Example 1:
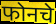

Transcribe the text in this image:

फोनचे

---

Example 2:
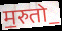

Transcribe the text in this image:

म॒रुतो॒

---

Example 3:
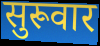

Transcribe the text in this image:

सुरूवार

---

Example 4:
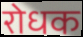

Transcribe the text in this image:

रोधक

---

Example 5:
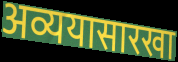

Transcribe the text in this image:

अव्ययासारखा